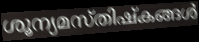
ശൂന്യമസ്തിഷ്കങ്ങൾ